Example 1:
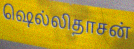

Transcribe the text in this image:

ஷெல்லிதாசன்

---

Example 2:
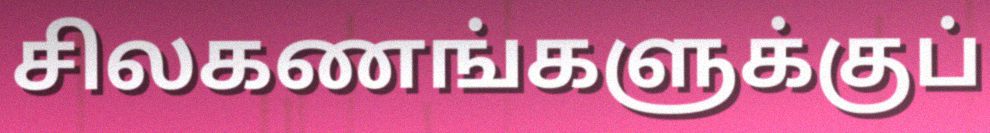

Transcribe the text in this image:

சிலகணங்களுக்குப்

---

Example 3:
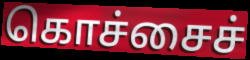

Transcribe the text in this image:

கொச்சைச்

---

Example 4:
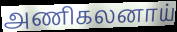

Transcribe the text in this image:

அணிகலனாய்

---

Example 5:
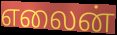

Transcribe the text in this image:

எலைன்